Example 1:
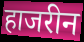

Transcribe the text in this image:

हाजरीन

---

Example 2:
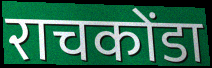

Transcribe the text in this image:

राचकोंडा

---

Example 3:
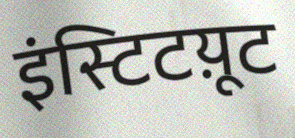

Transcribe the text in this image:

इंस्टिटय़ूट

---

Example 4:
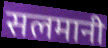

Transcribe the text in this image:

सलमानी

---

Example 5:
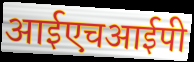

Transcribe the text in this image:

आईएचआईपी